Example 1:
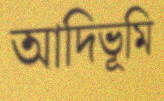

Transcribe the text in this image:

আদিভূমি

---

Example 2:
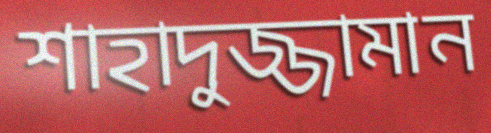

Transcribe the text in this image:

শাহাদুজ্জামান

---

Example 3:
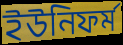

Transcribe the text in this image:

ইউনিফর্ম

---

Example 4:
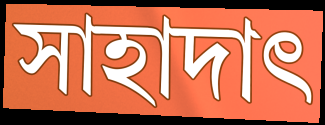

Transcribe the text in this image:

সাহাদাৎ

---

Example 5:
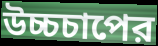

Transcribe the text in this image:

উচ্চচাপের